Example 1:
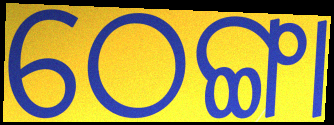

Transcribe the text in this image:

ଠେଙ୍ଗା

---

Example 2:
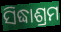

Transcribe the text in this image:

ସିଦ୍ଧାଶ୍ରମ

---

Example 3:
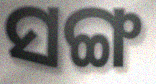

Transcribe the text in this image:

ସଙ୍ଗ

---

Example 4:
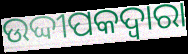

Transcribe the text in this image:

ଉଦ୍ଦୀପକଦ୍ବାରା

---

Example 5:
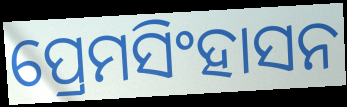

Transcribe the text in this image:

ପ୍ରେମସିଂହାସନ